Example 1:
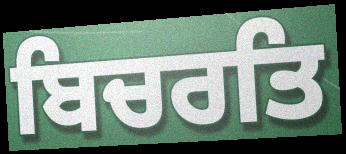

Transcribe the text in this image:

ਬਿਚਰਤਿ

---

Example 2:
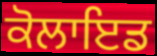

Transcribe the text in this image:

ਕੋਲਾਇਡ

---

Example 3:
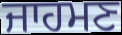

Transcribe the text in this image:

ਜਾਹਮਣ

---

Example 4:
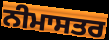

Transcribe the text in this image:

ਨੀਮਾਸਤਰ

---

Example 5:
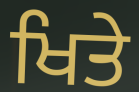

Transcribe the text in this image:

ਖਿਤੇ